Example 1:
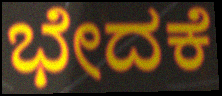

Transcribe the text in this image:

ಭೇದಕೆ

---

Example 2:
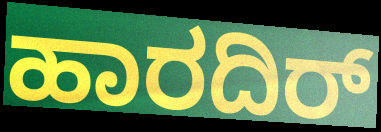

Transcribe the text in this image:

ಹಾರದಿರ್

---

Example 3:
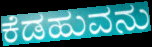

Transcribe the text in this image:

ಕೆಡಹುವನು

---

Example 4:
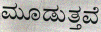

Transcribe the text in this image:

ಮೂಡುತ್ತವೆ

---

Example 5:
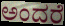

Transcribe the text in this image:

ಅಂದರೆ